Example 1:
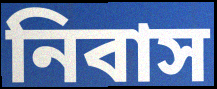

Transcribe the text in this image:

নিবাস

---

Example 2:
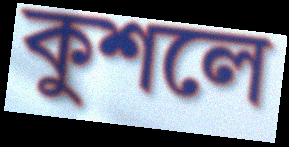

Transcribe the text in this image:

কুশলে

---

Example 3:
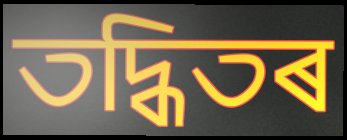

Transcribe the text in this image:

তদ্ধিতৰ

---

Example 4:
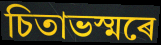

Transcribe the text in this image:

চিতাভস্মৰে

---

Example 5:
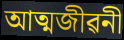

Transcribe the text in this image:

আত্মজীৱনী